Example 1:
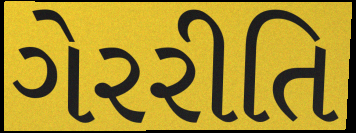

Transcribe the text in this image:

ગેરરીતિ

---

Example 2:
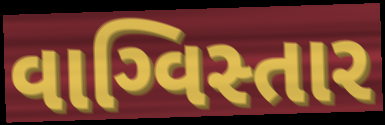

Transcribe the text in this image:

વાગ્વિસ્તાર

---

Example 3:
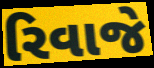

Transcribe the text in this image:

રિવાજે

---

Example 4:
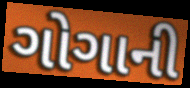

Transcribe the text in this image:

ગોગાની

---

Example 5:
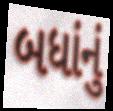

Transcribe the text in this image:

બધાંનું